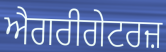
ਐਗਰੀਗੇਟਰਜ਼